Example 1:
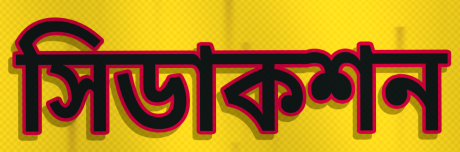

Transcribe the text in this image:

সিডাকশন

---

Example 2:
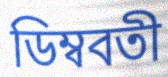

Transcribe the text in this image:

ডিম্ববতী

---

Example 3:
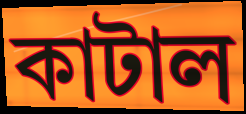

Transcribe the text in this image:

কাটাল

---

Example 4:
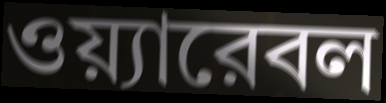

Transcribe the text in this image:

ওয়্যারেবল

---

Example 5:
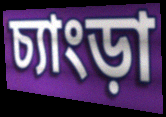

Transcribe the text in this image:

চ্যাংড়া